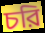
চরি